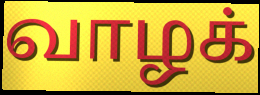
வாழக்